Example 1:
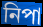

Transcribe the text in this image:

নিপা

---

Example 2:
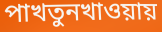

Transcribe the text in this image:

পাখতুনখাওয়ায়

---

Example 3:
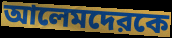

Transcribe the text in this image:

আলেমদেরকে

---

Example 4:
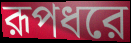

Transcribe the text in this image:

রূপধরে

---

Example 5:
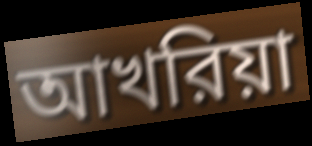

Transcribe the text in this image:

আখরিয়া